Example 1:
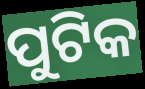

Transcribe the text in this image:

ପୁଟିକ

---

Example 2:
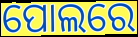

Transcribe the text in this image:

ପୋଲରେ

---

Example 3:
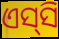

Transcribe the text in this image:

ଏସ୍‌ସି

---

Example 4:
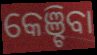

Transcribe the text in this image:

କେଞ୍ଚିବା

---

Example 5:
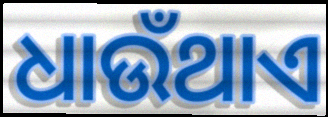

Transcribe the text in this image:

ଧାଉଁଥାଏ